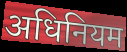
अधिनियम